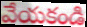
వేయకండి